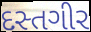
દસ્તગીર